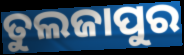
ତୁଲଜାପୁର